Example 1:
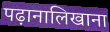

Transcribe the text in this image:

पढ़ानालिखाना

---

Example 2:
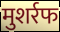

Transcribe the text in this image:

मुशर्रफ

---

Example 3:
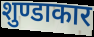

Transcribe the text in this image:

शुण्डाकार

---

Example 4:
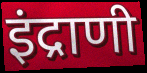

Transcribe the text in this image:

इंद्राणी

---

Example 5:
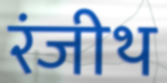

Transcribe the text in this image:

रंजीथ